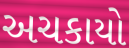
અચકાયો